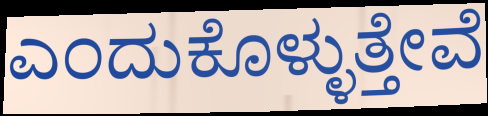
ಎಂದುಕೊಳ್ಳುತ್ತೇವೆ